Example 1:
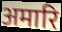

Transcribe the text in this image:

अमारि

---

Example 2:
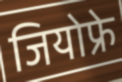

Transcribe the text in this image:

जियोफ्रे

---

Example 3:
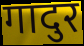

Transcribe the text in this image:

गादुर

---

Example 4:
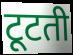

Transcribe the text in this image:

टूटती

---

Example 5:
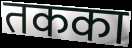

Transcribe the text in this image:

तकका